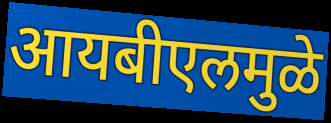
आयबीएलमुळे